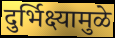
दुर्भिक्ष्यामुळे